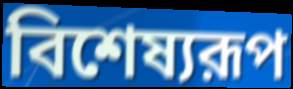
বিশেষ্যরূপ